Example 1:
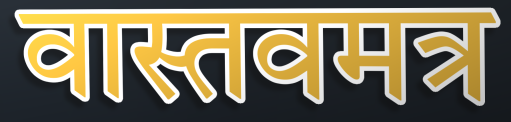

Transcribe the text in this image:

वास्तवमत्र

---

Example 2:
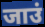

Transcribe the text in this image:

जाउं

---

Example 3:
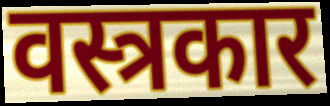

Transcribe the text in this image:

वस्त्रकार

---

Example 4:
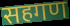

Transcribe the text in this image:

सहगण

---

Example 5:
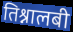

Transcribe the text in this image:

तिश्नालबी